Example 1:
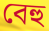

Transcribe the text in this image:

বেহু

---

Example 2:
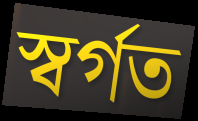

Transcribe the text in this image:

স্বৰ্গত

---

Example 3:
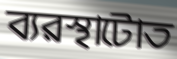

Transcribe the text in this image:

ব্যৱস্থাটোত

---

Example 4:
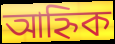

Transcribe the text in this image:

আহ্নিক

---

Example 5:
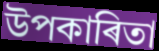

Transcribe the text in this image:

উপকাৰিতা